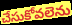
చేసుకోవలెను